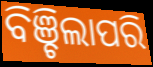
ବିଞ୍ଚିଲାପରି